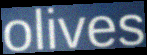
olives